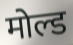
मोल्ड